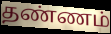
தண்ணம்